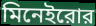
মিনেইরোর